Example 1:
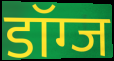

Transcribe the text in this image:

डॉग्ज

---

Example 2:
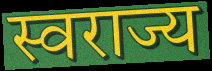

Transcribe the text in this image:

स्वराज्य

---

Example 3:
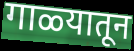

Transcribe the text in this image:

गाळ्यातून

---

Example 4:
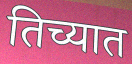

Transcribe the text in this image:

तिच्यात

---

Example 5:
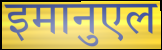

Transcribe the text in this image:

इमानुएल